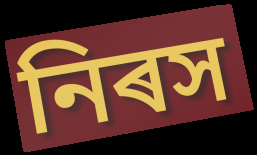
নিৰস